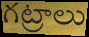
గట్రాలు